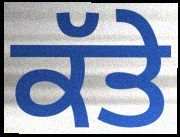
ਕੱਤੇ